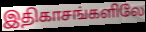
இதிகாசங்களிலே